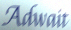
Adwait